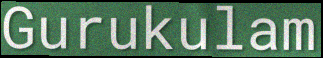
Gurukulam